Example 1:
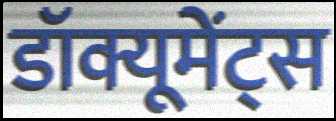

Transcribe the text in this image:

डॉक्यूमेंट्स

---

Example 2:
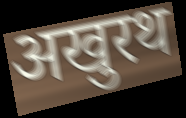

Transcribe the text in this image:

अखुरथ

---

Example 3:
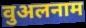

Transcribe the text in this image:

वुअलनाम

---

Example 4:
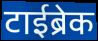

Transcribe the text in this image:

टाईब्रेक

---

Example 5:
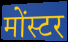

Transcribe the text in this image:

मोंस्टर